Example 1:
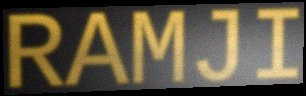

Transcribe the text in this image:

RAMJI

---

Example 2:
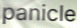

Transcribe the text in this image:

panicle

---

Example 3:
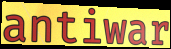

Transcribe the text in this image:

antiwar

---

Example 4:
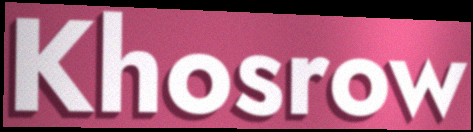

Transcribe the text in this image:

Khosrow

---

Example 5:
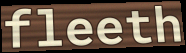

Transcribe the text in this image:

fleeth